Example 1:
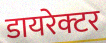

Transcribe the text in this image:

डायरेक्‍टर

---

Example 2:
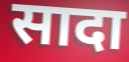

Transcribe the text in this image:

सादा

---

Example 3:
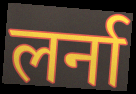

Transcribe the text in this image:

लर्ना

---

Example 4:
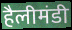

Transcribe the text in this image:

हैलीमंडी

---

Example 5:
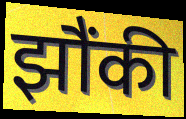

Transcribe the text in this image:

झौंकी